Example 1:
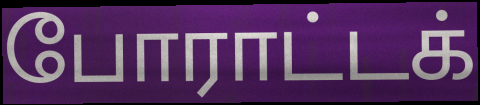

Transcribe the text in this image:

போராட்டக்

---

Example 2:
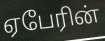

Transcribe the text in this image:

ஏபேரின்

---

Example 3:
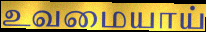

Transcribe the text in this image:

உவமையாய்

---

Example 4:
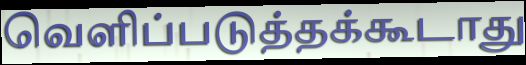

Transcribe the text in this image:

வெளிப்படுத்தக்கூடாது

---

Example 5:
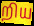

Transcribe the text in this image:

றிய